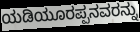
ಯಡಿಯೂರಪ್ಪನವರನ್ನು